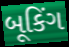
બૂકિંગ